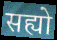
सह्यो